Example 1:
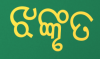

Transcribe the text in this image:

ଝଙ୍କୃତ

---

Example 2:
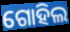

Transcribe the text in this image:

ଗୋହିଲ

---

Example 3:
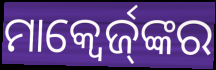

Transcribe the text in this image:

ମାକ୍ୱେର୍ଜ୍‌ଙ୍କର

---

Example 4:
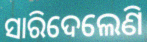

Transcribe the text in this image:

ସାରିଦେଲେଣି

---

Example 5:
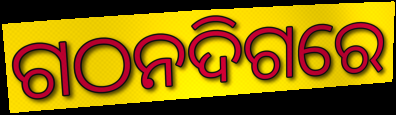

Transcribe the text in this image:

ଗଠନଦିଗରେ